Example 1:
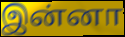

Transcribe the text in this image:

இன்னா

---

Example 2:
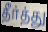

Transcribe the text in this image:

தீர்த்து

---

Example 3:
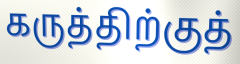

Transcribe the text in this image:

கருத்திற்குத்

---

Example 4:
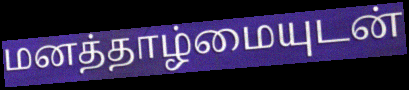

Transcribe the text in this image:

மனத்தாழ்மையுடன்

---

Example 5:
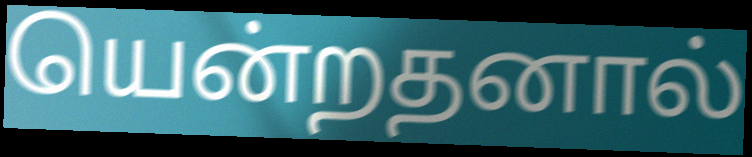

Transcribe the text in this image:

யென்றதனால்